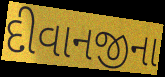
દીવાનજીના